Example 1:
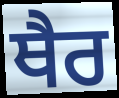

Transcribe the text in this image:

ਥੈਰ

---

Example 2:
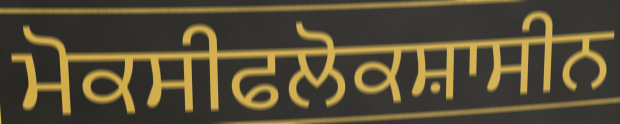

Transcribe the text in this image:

ਮੋਕਸੀਫਲੋਕਸ਼ਾਸੀਨ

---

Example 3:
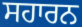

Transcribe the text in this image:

ਸਹਾਰਨ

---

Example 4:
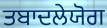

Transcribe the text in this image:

ਤਬਾਦਲੇਯੋਗ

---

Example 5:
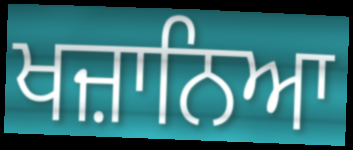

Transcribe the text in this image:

ਖਜ਼ਾਨਿਆ